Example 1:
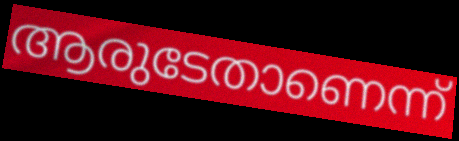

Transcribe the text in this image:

ആരുടേതാണെന്ന്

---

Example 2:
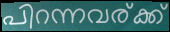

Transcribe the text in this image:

പിറന്നവര്ക്ക്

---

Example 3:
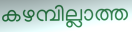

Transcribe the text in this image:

കഴമ്പില്ലാത്ത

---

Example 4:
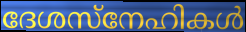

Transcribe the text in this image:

ദേശസ്നേഹികൾ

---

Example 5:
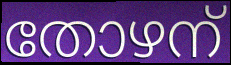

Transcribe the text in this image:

തോഴന്